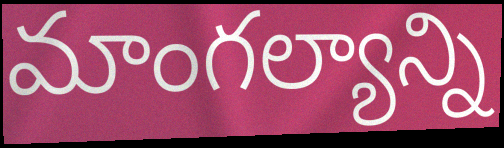
మాంగల్యాన్ని